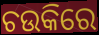
ଚଉକିରେ